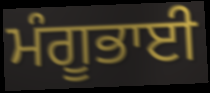
ਮੰਗੂਭਾਈ